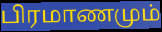
பிரமாணமும்